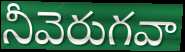
నీవెరుగవా